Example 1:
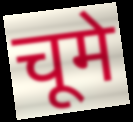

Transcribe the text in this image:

चूमे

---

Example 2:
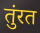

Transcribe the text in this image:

तुंरत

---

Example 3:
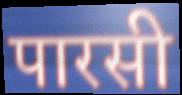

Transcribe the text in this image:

पारसी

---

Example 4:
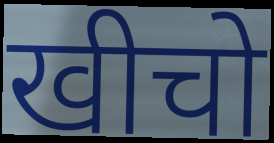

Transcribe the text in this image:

खीचो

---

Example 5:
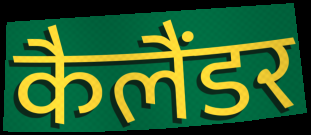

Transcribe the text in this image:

कैलैंडर